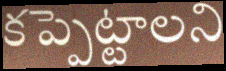
కప్పెట్టాలని